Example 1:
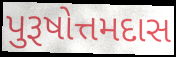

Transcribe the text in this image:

પુરૂષોત્તમદાસ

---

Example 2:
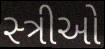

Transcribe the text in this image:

સ્‍ત્રીઓ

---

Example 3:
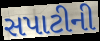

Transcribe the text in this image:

સપાટીની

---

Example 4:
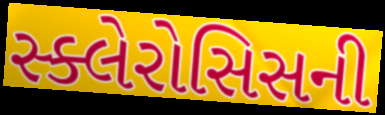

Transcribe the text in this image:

સ્ક્લેરોસિસની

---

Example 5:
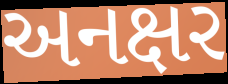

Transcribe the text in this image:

અનક્ષર